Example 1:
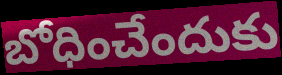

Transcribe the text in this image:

బోధించేందుకు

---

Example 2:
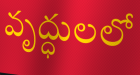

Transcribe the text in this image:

వృద్ధులలో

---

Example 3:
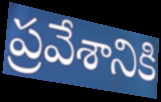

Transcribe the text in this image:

ప్రవేశానికి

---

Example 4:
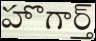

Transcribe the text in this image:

హొగార్త్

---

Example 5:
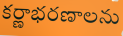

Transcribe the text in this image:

కర్ణాభరణాలను